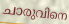
ചാരുവിനെ